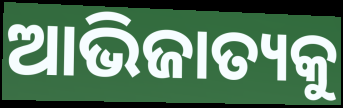
ଆଭିଜାତ୍ୟକୁ